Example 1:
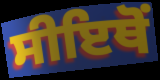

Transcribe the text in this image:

ਸੀਇਥੋਂ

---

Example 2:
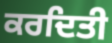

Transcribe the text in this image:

ਕਰਦਿਤੀ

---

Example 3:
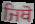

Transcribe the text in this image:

ਜਿਥੋ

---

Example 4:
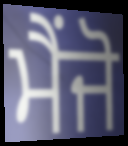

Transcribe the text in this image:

ਮੈਂਜੋ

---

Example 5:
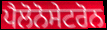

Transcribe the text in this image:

ਪੈਲੋਨੋਸੇਟਰੋਨ